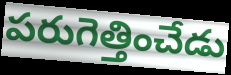
పరుగెత్తించేడు